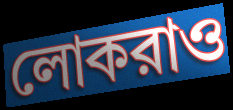
লোকরাও